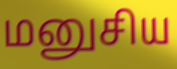
மனுசிய